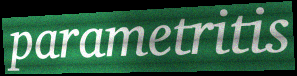
parametritis